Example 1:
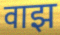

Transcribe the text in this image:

वाझ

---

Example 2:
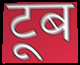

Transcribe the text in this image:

टूब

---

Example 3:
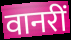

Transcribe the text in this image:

वानरीं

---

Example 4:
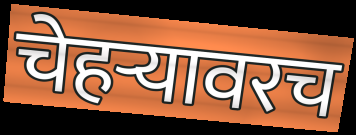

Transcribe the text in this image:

चेहर्‍यावरच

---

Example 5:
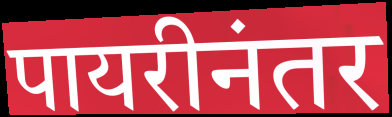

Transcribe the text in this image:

पायरीनंतर